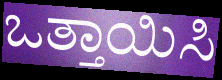
ಒತ್ತಾಯಿಸಿ